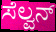
ಸೆಲ್ವನ್